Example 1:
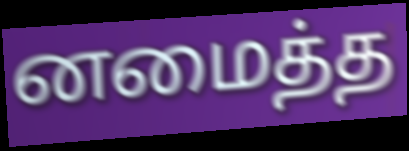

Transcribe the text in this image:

னமைத்த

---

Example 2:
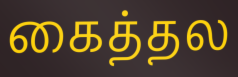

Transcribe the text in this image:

கைத்தல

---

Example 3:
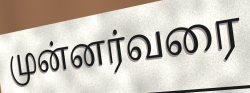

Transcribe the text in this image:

முன்னர்வரை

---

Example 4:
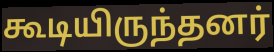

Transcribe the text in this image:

கூடியிருந்தனர்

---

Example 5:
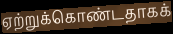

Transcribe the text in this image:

ஏற்றுக்கொண்டதாகக்